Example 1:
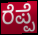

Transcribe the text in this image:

ರೆಪ್ಪೆ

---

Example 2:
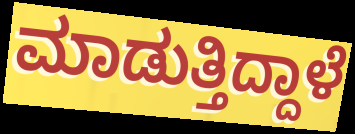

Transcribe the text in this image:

ಮಾಡುತ್ತಿದ್ದಾಳೆ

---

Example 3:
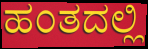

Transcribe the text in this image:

ಹಂತದಲ್ಲಿ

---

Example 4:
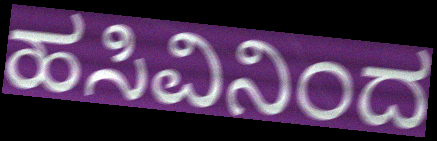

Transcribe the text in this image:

ಹಸಿವಿನಿಂದ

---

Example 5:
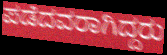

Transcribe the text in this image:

ಪಡೆದವರಾಗಿದ್ದರು